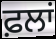
ਫ਼ਲਾਂ